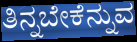
ತಿನ್ನಬೇಕೆನ್ನುವ